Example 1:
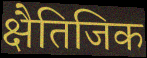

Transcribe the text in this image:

क्षैतिजिक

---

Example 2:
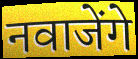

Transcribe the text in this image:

नवाजेंगे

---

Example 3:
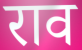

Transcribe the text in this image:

राव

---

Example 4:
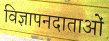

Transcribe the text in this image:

विज्ञापनदाताओं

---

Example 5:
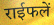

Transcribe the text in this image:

राईफलें